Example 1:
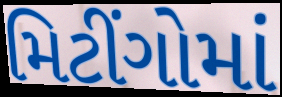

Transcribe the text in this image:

મિટીંગોમાં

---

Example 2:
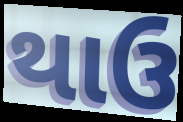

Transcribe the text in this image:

થાઉ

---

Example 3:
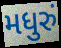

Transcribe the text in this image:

મધુરું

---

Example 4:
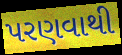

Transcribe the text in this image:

પરણવાથી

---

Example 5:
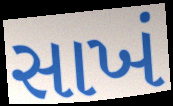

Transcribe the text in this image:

સાખં